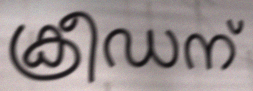
ക്രീഡന്